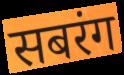
सबरंग